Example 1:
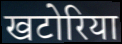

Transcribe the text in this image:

खटोरिया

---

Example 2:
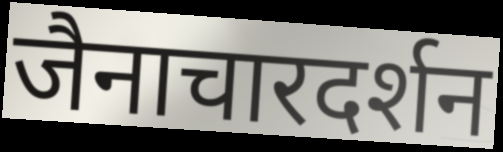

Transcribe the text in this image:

जैनाचारदर्शन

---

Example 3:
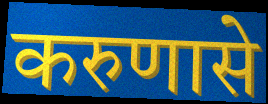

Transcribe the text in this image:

करुणासे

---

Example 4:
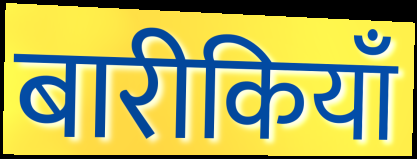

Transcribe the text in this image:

बारीकियाँ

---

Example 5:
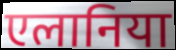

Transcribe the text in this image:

एलानिया